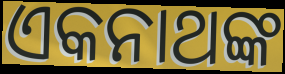
ଏକନାଥଙ୍କ